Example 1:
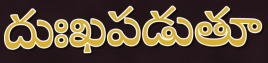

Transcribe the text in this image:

దుఃఖపడుతూ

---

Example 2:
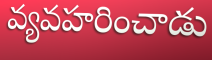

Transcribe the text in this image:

వ్యవహరించాడు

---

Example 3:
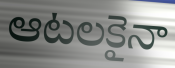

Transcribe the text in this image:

ఆటలకైనా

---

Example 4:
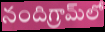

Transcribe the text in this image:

నందిగ్రామ్‌లో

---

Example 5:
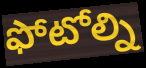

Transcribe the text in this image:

ఫోటోల్ని